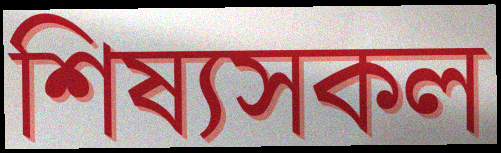
শিষ্যসকল